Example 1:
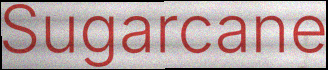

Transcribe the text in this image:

Sugarcane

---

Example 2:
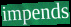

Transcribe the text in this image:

impends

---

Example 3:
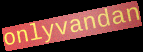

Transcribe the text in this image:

onlyvandan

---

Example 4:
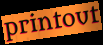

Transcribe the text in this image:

printout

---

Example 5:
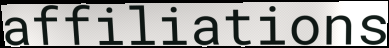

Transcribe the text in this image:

affiliations